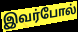
இவர்போல்